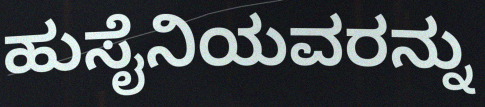
ಹುಸೈನಿಯವರನ್ನು